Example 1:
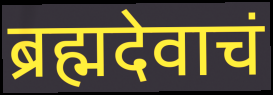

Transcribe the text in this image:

ब्रह्मदेवाचं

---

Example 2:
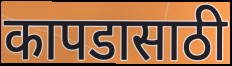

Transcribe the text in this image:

कापडासाठी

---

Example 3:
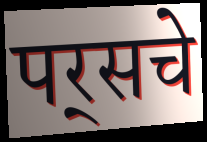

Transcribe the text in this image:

पर्सचे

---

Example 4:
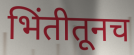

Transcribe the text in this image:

भिंतीतूनच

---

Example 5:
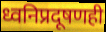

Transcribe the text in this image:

ध्वनिप्रदूषणही